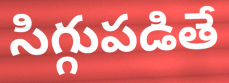
సిగ్గుపడితే